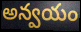
అన్వయం